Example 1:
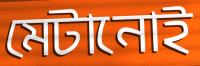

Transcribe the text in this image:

মেটানোই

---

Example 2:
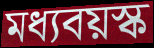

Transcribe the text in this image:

মধ্যবয়স্ক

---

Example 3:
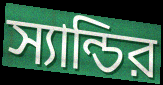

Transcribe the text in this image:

স্যান্ডির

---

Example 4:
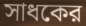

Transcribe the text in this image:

সাধকের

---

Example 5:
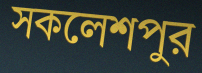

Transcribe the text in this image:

সকলেশপুর